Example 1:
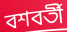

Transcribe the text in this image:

বশবর্তী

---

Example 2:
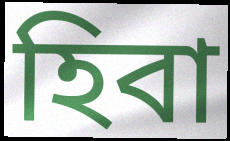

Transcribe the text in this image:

হিবা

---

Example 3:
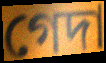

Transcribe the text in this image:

গেদা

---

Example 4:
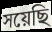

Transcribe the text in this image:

সয়েছি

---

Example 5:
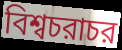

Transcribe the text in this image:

বিশ্বচরাচর